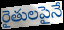
రైతులపైనే